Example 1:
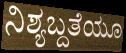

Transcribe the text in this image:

ನಿಶ್ಯಬ್ದತೆಯೂ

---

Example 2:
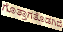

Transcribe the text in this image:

ಗೊತ್ತಾಗತೊಡಗಿದೆ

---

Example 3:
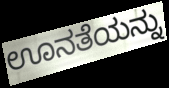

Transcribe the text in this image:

ಊನತೆಯನ್ನು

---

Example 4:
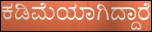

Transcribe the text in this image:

ಕಡಿಮೆಯಾಗಿದ್ದಾರೆ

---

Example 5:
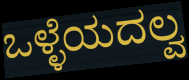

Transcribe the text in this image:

ಒಳ್ಳೆಯದಲ್ವ